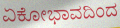
ಏಕೋಭಾವದಿಂದ